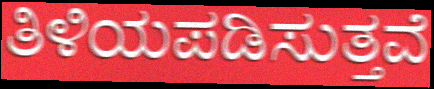
ತಿಳಿಯಪಡಿಸುತ್ತವೆ